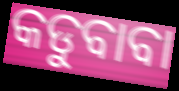
କଡୁବାବା